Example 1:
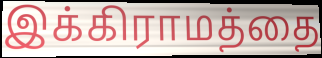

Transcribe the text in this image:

இக்கிராமத்தை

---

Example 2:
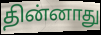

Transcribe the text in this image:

தின்னாது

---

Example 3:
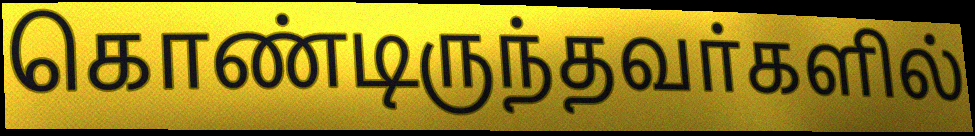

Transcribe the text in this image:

கொண்டிருந்தவர்களில்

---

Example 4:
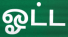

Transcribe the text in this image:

ஓட்ட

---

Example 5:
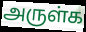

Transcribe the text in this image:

அருள்க